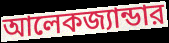
আলেকজ্যান্ডার